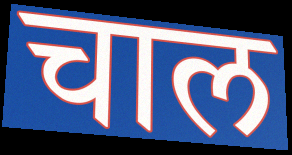
चाल